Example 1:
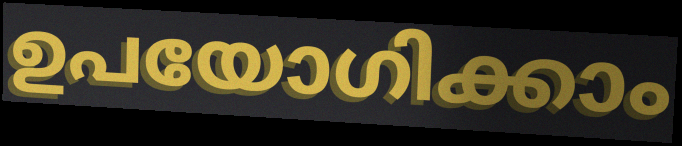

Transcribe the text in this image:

ഉപയോഗിക്കാം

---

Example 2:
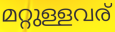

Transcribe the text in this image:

മറ്റുള്ളവര്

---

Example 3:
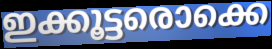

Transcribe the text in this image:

ഇക്കൂട്ടരൊക്കെ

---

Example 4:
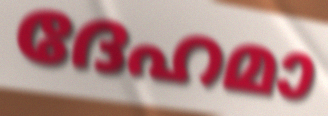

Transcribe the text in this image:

ദേഹമാ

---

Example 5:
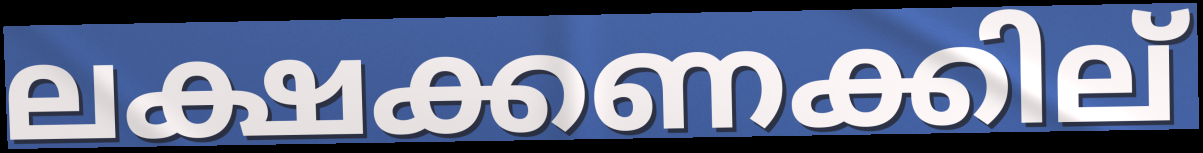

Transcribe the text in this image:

ലക്ഷക്കണക്കില്